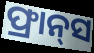
ଫ୍ରାନ୍‍ସ